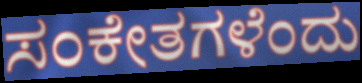
ಸಂಕೇತಗಳೆಂದು